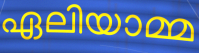
ഏലിയാമ്മ